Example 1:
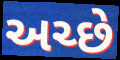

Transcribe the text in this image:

અચ્છે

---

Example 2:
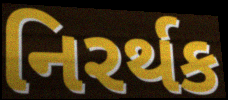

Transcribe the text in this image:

નિરર્થક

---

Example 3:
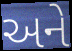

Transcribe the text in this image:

અને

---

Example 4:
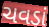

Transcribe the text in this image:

ચવડાં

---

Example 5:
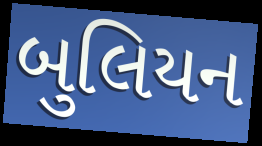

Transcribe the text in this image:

બુલિયન